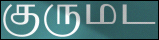
குருமட